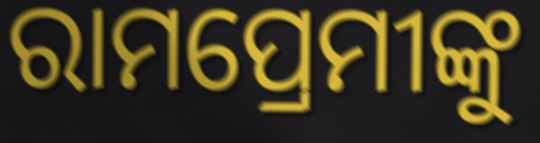
ରାମପ୍ରେମୀଙ୍କୁ